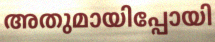
അതുമായിപ്പോയി